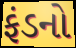
ફંડનો